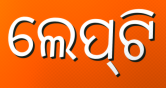
ଲେପ୍‍ଟି